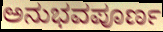
ಅನುಭವಪೂರ್ಣ